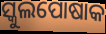
ସ୍କୁଲପୋଷାକ